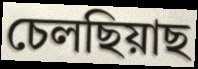
চেলছিয়াছ